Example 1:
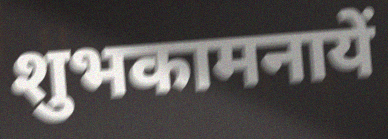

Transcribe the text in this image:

शुभकामनायें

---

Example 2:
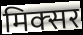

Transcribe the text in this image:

मिक्‍सर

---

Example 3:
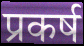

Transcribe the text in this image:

प्रकर्ष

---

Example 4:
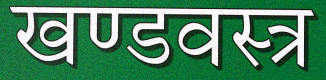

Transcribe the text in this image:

खण्डवस्त्र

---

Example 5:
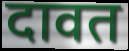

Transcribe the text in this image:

दावत